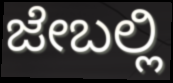
ಜೇಬಲ್ಲಿ